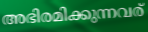
അഭിരമിക്കുന്നവര്